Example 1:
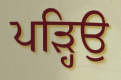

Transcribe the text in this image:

ਪੜ੍ਹਿਉ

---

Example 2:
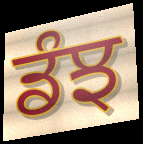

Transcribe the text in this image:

ਡੰਝ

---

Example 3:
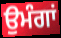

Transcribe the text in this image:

ਉਮੰਗਾਂ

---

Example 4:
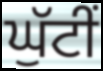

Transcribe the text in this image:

ਘੁੱਟੀਂ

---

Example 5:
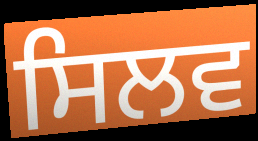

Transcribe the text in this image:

ਸਿਲਵ